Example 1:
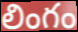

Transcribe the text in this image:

లింగం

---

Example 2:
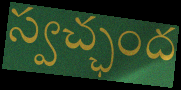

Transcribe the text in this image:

స్వచ్ఛంద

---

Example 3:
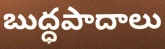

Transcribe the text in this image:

బుద్ధపాదాలు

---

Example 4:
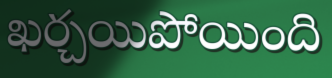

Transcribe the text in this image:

ఖర్చయిపోయింది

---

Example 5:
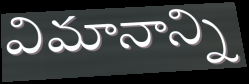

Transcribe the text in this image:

విమానాన్ని